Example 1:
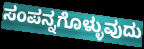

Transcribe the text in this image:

ಸಂಪನ್ನಗೊಳ್ಳುವುದು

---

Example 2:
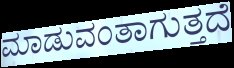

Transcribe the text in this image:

ಮಾಡುವಂತಾಗುತ್ತದೆ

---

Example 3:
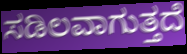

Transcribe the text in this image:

ಸಡಿಲವಾಗುತ್ತದೆ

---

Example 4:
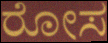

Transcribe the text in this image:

ರೋಸ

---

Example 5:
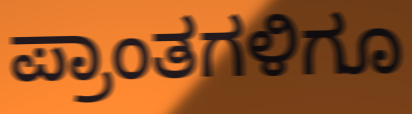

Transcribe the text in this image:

ಪ್ರಾಂತಗಳಿಗೂ